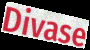
Divase